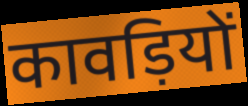
कावड़ियों